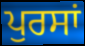
ਪੁਰਸਾਂ